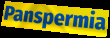
Panspermia